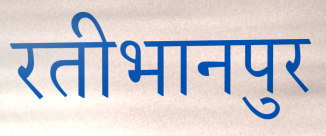
रतीभानपुर